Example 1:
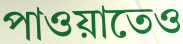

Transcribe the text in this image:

পাওয়াতেও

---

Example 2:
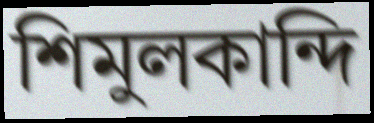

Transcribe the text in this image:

শিমুলকান্দি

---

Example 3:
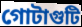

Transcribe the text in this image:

গোটাগুটি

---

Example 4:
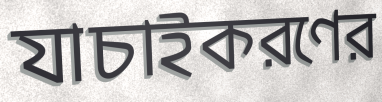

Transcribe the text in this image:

যাচাইকরণের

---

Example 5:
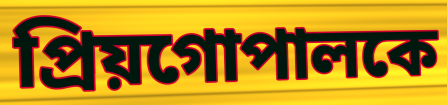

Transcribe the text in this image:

প্রিয়গোপালকে